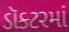
ડૉક્ટરમાં